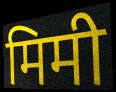
मिमी